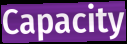
Capacity